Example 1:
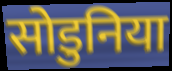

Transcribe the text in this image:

सोडुनिया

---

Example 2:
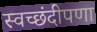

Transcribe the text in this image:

स्वच्छंदीपणा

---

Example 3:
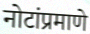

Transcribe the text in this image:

नोटांप्रमाणे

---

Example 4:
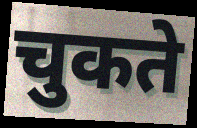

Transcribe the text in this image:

चुकते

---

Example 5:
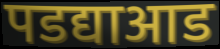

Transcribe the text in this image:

पडद्याआड